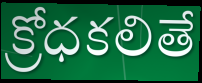
క్రోధకలితే